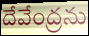
దేవేంద్రను